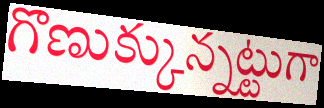
గొణుక్కున్నట్టుగా